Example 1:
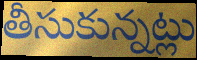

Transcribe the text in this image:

తీసుకున్నట్లు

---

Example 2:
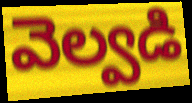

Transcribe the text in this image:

వెల్వడి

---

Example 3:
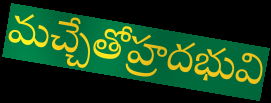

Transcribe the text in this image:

మచ్చేతోహ్రదభువి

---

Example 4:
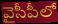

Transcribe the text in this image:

వైసీపీలో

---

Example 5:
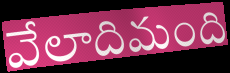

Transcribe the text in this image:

వేలాదిమంది